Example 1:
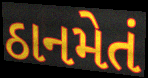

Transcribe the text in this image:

ઠાનમેતં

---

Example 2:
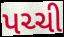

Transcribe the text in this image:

પચ્ચી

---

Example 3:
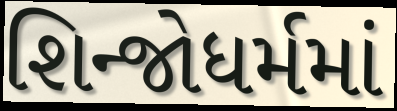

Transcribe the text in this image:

શિન્જોધર્મમાં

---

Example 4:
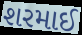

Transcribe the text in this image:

શરમાઈ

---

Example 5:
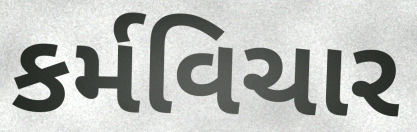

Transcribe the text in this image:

કર્મવિચાર